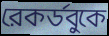
রেকর্ডবুকে